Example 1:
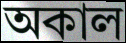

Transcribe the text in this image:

অকাল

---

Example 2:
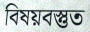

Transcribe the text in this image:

বিষয়বস্তুত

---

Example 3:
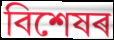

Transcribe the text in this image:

বিশেষৰ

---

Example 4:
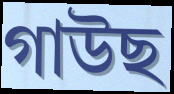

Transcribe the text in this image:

গাউছ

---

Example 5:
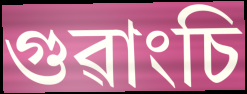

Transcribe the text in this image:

গুৱাংচি